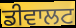
ਡੀਵਾਲਟ